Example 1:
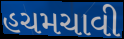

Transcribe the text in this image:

હચમચાવી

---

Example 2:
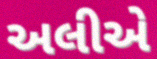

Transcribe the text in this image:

અલીએ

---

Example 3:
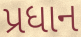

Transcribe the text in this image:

પ્રધાન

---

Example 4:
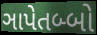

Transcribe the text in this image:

ઞાપેતબ્બો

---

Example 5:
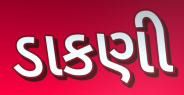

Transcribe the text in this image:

ડાકણી